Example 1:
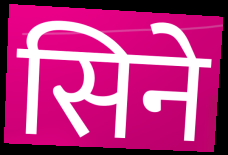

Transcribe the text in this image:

सिने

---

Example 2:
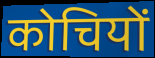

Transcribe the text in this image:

कोचियों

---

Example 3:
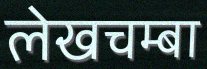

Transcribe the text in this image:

लेखचम्बा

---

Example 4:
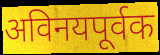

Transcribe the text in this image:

अविनयपूर्वक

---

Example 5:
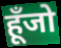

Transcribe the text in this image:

हूँजो